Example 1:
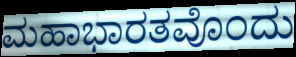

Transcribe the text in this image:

ಮಹಾಭಾರತವೊಂದು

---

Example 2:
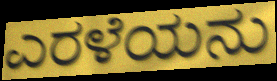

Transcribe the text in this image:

ಎರಳೆಯನು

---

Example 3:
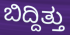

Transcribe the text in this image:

ಬಿದ್ದಿತ್ತು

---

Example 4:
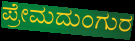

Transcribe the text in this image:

ಪ್ರೇಮದುಂಗುರ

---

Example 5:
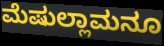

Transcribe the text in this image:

ಮೆಷುಲ್ಲಾಮನೂ